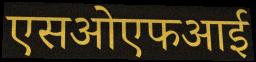
एसओएफआई